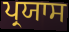
ਪ੍ਰਯਾਸ